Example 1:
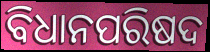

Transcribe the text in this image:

ବିଧାନପରିଷଦ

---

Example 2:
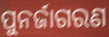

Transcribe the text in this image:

ପୁନର୍ଜାଗରଣ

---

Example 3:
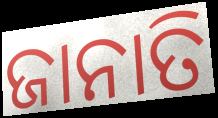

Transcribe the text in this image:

ଜାନାତି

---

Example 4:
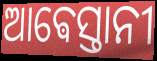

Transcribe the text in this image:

ଆଵେସ୍ତାନୀ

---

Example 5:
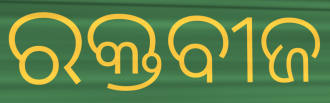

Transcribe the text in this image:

ରକ୍ତବୀଜ